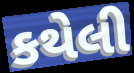
કથેલી